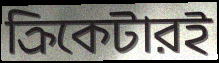
ক্রিকেটারই